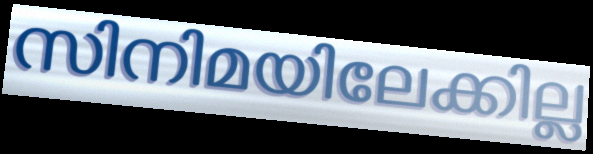
സിനിമയിലേക്കില്ല